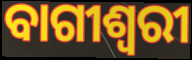
ବାଗୀଶ୍ୱରୀ